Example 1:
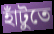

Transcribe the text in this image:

হাঁটুতে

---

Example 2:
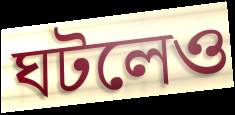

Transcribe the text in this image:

ঘটলেও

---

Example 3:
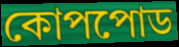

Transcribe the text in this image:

কোপপোড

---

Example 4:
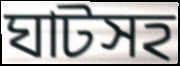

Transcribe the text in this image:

ঘাটসহ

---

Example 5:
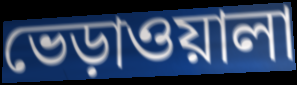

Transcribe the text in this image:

ভেড়াওয়ালা